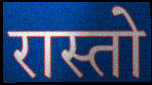
रास्तो